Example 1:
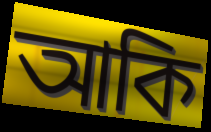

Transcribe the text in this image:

আকি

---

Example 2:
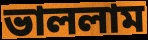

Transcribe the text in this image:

ভাললাম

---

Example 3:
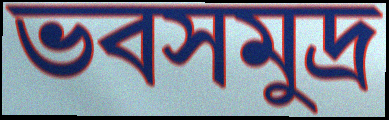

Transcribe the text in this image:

ভবসমুদ্র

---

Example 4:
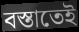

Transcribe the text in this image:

বস্তাতেই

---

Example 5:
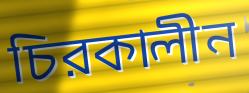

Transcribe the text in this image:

চিরকালীন